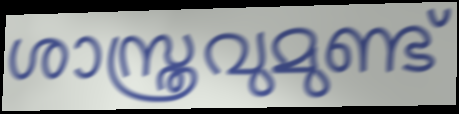
ശാസ്ത്രവുമുണ്ട്